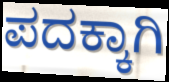
ಪದಕ್ಕಾಗಿ